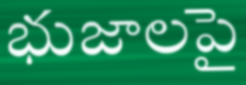
భుజాలపై